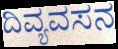
ದಿವ್ಯವಸನ